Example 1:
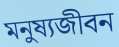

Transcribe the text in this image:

মনুষ্যজীবন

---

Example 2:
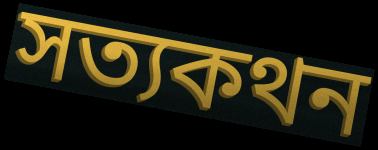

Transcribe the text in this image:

সত্যকথন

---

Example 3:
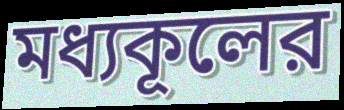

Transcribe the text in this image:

মধ্যকূলের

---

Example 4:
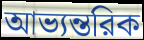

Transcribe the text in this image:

আভ্যন্তরিক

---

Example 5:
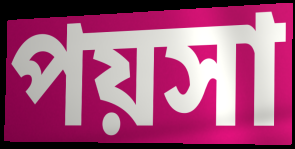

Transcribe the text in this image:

পয়সা